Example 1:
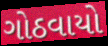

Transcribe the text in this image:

ગોઠવાયો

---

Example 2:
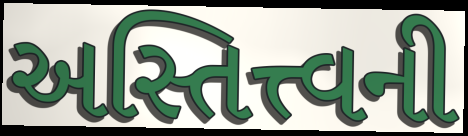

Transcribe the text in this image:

અસ્તિત્ત્વની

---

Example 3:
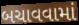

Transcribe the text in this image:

બચાવવામાં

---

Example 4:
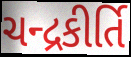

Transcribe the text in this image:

ચન્દ્રકીર્તિ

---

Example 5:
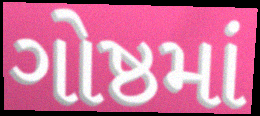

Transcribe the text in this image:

ગોષ્ઠમાં